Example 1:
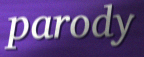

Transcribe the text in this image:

parody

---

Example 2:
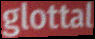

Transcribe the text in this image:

glottal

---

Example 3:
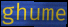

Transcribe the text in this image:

ghume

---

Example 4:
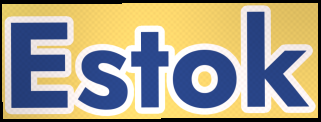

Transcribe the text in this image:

Estok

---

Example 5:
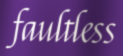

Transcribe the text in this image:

faultless